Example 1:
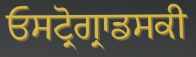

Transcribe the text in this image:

ਓਸਟ੍ਰੋਗ੍ਰਾਡਸਕੀ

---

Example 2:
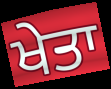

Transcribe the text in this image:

ਖੇਤਾ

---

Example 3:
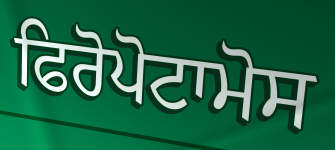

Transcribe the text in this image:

ਫਿਰੋਪੋਟਾਮੋਸ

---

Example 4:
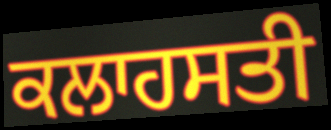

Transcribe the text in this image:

ਕਲਾਹਸਤੀ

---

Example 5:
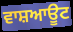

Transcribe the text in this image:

ਵਾਸ਼ਆਊਟ